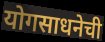
योगसाधनेची